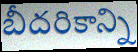
బీదరికాన్ని